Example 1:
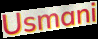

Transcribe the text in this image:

Usmani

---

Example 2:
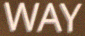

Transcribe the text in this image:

WAY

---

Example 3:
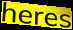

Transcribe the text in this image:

heres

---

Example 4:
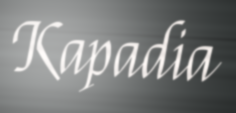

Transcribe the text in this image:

Kapadia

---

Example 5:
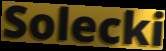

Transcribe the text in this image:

Solecki